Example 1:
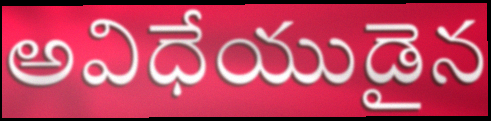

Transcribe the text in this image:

అవిధేయుడైన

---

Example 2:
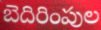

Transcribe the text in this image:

బెదిరింపుల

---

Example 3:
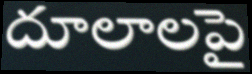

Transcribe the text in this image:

దూలాలపై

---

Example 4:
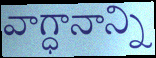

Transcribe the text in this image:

వాగ్ధానాన్ని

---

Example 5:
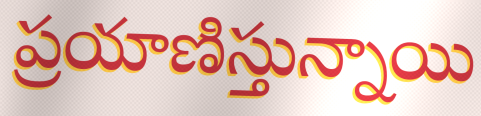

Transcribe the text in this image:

ప్రయాణిస్తున్నాయి